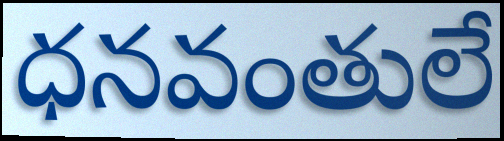
ధనవంతులే